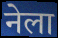
नेला